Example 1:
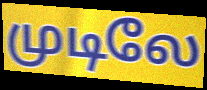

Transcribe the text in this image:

முடிலே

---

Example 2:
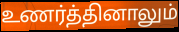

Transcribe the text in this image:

உணர்த்தினாலும்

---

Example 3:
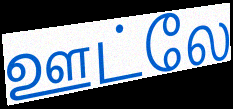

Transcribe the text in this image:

ஊட்லே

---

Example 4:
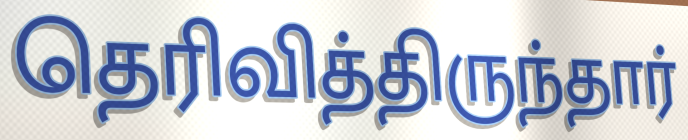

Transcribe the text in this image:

தெரிவித்திருந்தார்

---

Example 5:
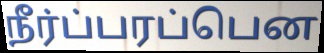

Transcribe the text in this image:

நீர்ப்பரப்பென